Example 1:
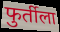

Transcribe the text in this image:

फुर्तीला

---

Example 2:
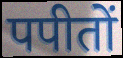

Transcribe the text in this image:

पपीतों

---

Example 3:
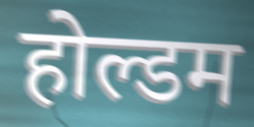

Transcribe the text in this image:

होल्डम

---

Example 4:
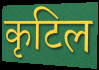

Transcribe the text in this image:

कृटिल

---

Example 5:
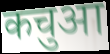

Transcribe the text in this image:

कचुआ